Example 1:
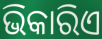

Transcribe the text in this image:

ଭିକାରିଏ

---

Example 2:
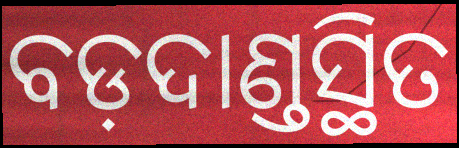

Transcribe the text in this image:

ବଡ଼ଦାଣ୍ଡସ୍ଥିତ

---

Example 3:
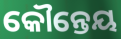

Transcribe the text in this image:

କୌନ୍ତେୟ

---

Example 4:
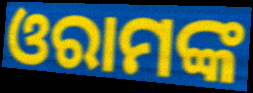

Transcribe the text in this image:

ଓରାମଙ୍କ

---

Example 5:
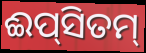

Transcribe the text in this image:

ଈପ୍‌ସିତମ୍